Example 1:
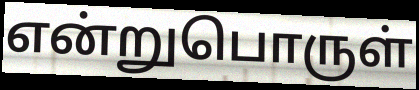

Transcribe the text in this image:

என்றுபொருள்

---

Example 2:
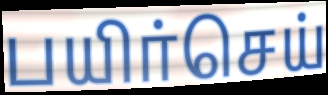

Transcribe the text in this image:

பயிர்செய்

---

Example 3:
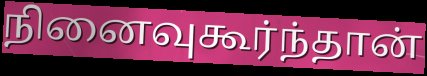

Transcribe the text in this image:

நினைவுகூர்ந்தான்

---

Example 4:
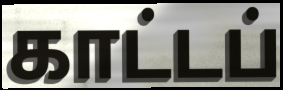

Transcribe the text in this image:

காட்டப்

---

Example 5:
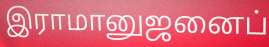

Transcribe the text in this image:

இராமானுஜனைப்